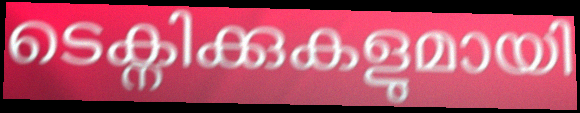
ടെക്നിക്കുകളുമായി